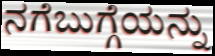
ನಗೆಬುಗ್ಗೆಯನ್ನು